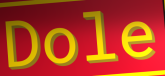
Dole